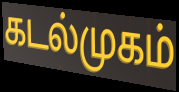
கடல்முகம்